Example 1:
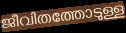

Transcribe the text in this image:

ജീവിതത്തോടുള്ള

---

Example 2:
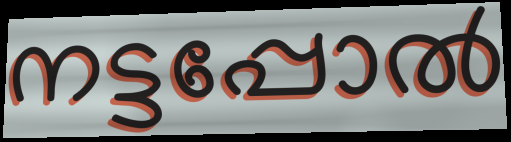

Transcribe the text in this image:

നട്ടപ്പോൽ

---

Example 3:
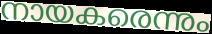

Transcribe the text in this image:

നായകരെന്നും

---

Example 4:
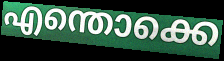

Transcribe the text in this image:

എന്തൊക്കെ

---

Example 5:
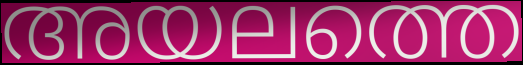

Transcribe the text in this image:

അയലത്തെ